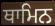
ਥਾਮਿਨ